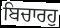
ਬਿਚਾਰਹੁ